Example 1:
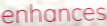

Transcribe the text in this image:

enhances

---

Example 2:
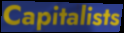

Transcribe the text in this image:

Capitalists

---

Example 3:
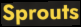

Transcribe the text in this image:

Sprouts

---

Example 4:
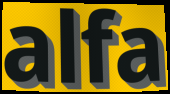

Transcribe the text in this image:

alfa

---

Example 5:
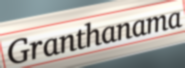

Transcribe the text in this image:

Granthanama